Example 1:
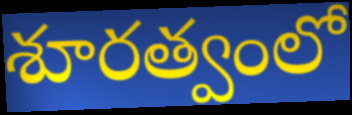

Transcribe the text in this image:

శూరత్వంలో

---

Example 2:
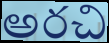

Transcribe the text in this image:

అరచి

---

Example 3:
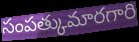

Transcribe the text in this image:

సంపత్కుమారగారి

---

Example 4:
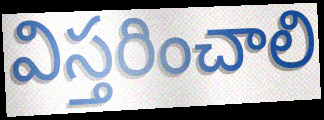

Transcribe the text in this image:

విస్తరించాలి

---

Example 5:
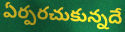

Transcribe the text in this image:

ఏర్పరచుకున్నదే